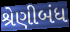
શ્રેણીબંધ